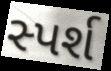
સ્પર્શ